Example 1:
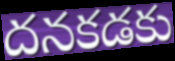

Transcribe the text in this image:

దనకడకు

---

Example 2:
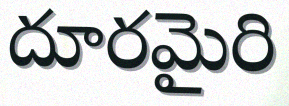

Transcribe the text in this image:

దూరమైరి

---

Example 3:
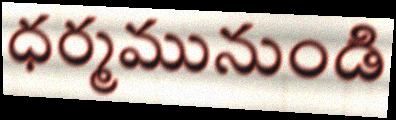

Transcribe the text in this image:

ధర్మమునుండి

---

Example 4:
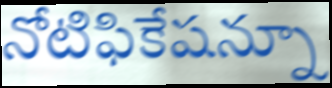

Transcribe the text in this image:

నోటిఫికేషన్నూ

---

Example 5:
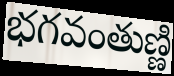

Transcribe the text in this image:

భగవంతుణ్ణి